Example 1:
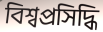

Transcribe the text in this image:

বিশ্বপ্ৰসিদ্ধি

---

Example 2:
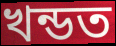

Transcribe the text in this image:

খন্ডত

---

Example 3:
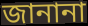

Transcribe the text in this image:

জানানা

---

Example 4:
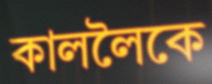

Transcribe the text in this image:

কাললৈকে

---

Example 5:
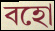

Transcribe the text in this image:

বহো